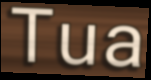
Tua